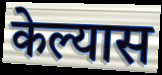
केल्यास